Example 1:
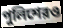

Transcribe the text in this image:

পুলিশেরও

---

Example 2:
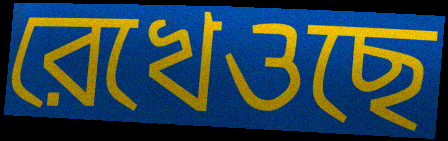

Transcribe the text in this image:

রেখেওছে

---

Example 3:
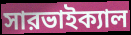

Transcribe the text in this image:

সারভাইক্যাল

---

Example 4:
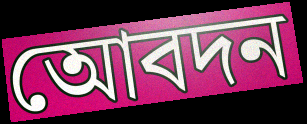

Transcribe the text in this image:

আেবদন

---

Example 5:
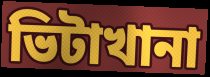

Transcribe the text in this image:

ভিটাখানা